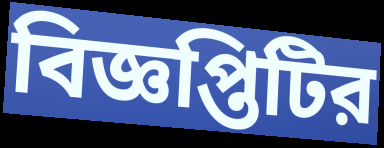
বিজ্ঞপ্তিটির